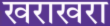
खराखरा